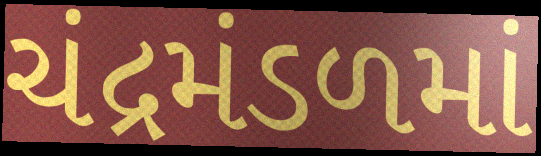
ચંદ્રમંડળમાં